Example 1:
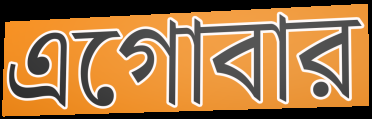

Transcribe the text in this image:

এগোবার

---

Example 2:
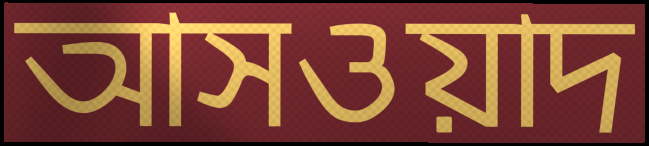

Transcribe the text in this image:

আসওয়াদ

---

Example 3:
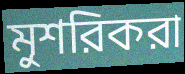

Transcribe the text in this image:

মুশরিকরা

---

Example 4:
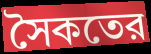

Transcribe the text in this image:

সৈকতের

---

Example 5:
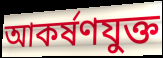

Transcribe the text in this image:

আকর্ষণযুক্ত